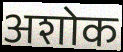
अशोक